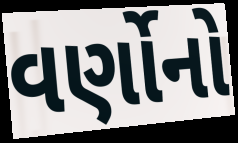
વર્ણોનો